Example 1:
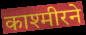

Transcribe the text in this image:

काश्मीरने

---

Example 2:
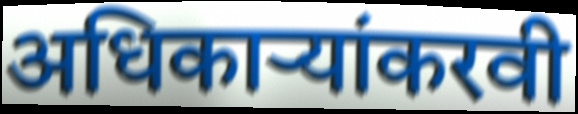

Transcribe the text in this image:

अधिकाऱ्यांकरवी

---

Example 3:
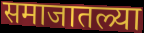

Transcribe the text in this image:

समाजातल्या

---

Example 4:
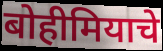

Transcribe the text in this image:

बोहीमियाचे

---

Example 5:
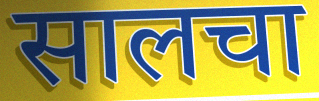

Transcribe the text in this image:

सालचा